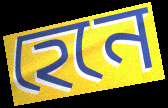
হেনে